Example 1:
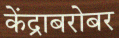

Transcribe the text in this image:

केंद्राबरोबर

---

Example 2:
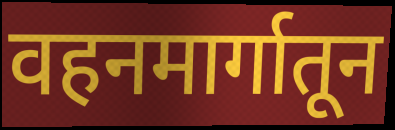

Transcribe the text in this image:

वहनमार्गातून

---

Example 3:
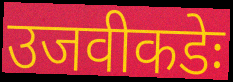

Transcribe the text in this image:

उजवीकडेः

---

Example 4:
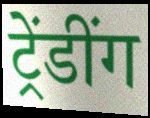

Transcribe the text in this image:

ट्रेंडींग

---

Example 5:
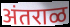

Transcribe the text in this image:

अंतराळ